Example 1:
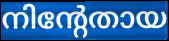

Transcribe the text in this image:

നിന്റേതായ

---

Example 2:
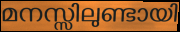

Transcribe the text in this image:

മനസ്സിലുണ്ടായി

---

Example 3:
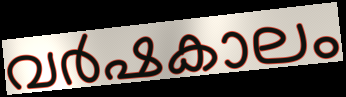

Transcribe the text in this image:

വർഷകാലം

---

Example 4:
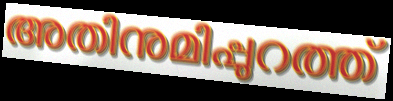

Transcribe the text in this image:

അതിനുമിപ്പുറത്ത്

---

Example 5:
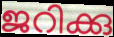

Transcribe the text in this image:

ജറിക്കു